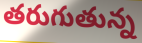
తరుగుతున్న